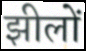
झीलों